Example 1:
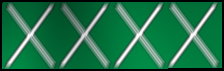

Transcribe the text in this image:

XXXX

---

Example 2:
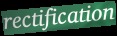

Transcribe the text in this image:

rectification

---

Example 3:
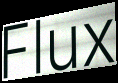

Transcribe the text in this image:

Flux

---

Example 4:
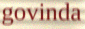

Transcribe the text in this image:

govinda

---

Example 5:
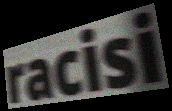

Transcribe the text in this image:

racisi